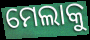
ମେଲାକୁ